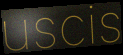
uscis